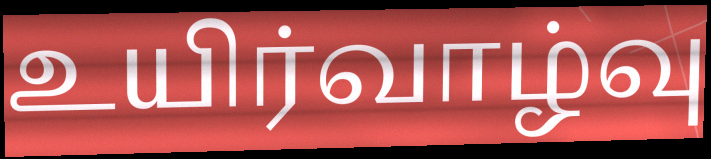
உயிர்வாழ்வு